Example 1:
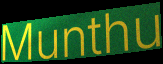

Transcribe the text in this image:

Munthu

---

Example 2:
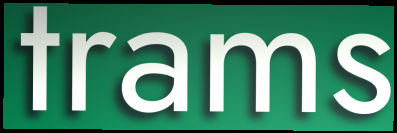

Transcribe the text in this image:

trams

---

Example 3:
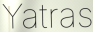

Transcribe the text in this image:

Yatras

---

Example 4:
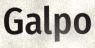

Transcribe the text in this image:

Galpo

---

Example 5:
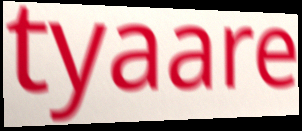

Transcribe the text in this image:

tyaare